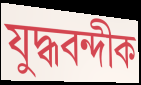
যুদ্ধবন্দীক